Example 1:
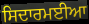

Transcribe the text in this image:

ਸਿਦਾਰਮਈਆ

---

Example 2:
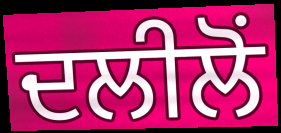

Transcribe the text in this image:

ਦਲੀਲੋਂ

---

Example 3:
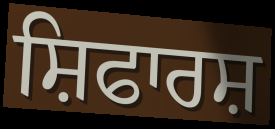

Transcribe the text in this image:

ਸ਼ਿਫਾਰਸ਼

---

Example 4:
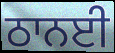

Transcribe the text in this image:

ਠਾਨਈ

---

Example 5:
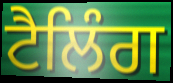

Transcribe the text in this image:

ਟੈਲਿੰਗ